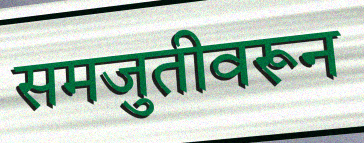
समजुतीवरून